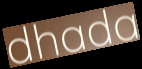
dhada